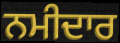
ਨਮੀਦਾਰ